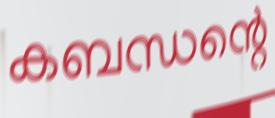
കബന്ധന്റെ